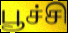
பூச்சி